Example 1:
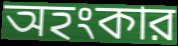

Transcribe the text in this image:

অহংকার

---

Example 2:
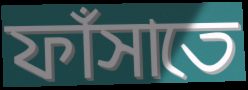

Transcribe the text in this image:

ফাঁসাতে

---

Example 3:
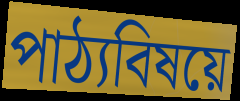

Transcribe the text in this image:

পাঠ্যবিষয়ে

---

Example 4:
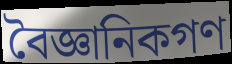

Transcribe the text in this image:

বৈজ্ঞানিকগণ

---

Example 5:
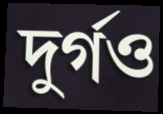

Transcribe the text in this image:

দুর্গও